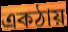
একঠায়